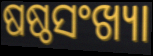
ଷଷ୍ଠସଂଖ୍ୟା